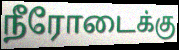
நீரோடைக்கு